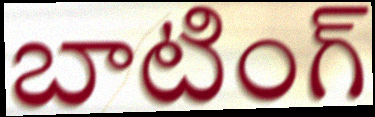
బాటింగ్